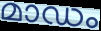
മാഡം